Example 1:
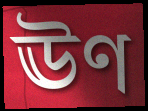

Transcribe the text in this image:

ঊণ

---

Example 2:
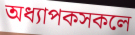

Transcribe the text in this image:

অধ্যাপকসকলে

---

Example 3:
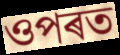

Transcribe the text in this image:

ওপৰত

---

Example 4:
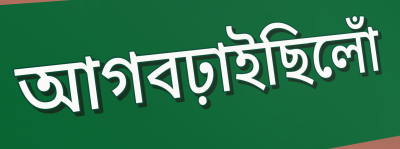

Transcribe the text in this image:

আগবঢ়াইছিলোঁ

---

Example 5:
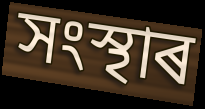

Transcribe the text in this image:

সংস্থাৰ